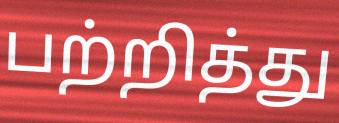
பற்றித்து